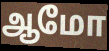
ஆமோ